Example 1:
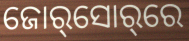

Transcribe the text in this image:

ଜୋର୍‌ସୋର୍‌ରେ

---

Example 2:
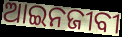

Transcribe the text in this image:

ଆଇନଜୀବୀ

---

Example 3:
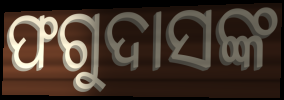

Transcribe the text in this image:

ଫଗୁଦାସଙ୍କ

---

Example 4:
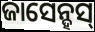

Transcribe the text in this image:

ଜାସେନ୍ହସ୍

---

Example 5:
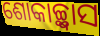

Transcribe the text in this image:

ଶୋକାଚ୍ଛ୍ୱାସ